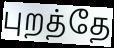
புறத்தே